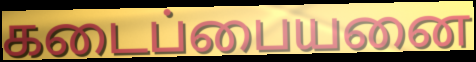
கடைப்பையனை